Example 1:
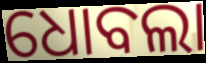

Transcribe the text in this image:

ଧୋବଲା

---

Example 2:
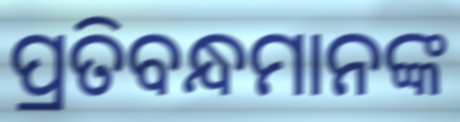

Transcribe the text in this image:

ପ୍ରତିବନ୍ଧମାନଙ୍କ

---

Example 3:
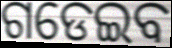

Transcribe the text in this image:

ଗଡେଇବ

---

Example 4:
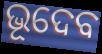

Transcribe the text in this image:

ଭୂଦେବ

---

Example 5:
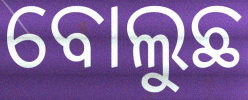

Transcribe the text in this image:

ବୋଲୁଛ